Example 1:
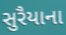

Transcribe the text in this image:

સુરૈયાના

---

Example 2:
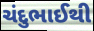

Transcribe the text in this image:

ચંદુભાઈથી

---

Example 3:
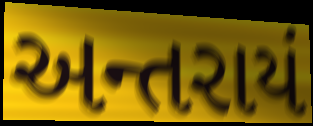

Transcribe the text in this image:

અન્તરાયં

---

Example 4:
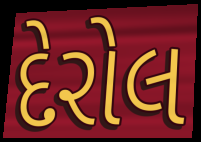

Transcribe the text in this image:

દેરોલ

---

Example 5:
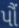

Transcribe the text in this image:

પૌં